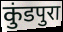
कुंडपुरा